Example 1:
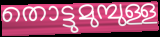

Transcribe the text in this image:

തൊട്ടുമുമ്പുള്ള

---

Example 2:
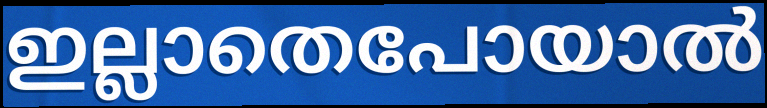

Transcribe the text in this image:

ഇല്ലാതെപോയാൽ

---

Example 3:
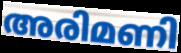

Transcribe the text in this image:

അരിമണി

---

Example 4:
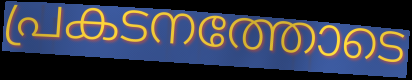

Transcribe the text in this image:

പ്രകടനത്തോടെ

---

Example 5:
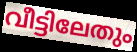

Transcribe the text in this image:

വീട്ടിലേതും